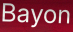
Bayon